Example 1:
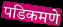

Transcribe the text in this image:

पडिकमणे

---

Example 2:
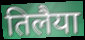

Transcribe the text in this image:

तिलैया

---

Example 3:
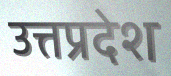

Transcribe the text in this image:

उत्तप्रदेश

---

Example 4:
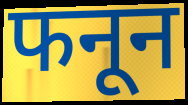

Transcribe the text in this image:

फनून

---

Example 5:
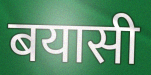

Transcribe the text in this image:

बयासी